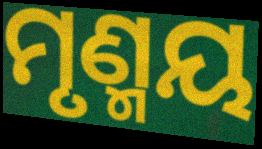
ମୃଣ୍ମୟ